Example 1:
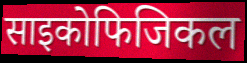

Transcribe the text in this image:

साइकोफिजिकल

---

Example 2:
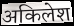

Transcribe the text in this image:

अकिलेश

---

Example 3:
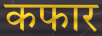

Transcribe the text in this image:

कफार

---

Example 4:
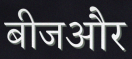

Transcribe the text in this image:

बीजऔर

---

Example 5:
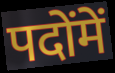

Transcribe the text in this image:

पदोंमें